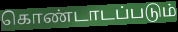
கொண்டாடப்படும்